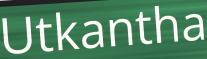
Utkantha